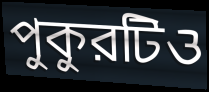
পুকুরটিও